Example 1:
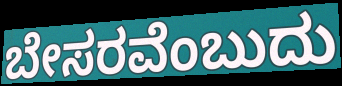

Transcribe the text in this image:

ಬೇಸರವೆಂಬುದು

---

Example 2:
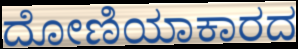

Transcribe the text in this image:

ದೋಣಿಯಾಕಾರದ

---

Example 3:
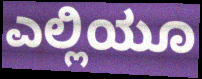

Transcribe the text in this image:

ಎಲ್ಲಿಯೂ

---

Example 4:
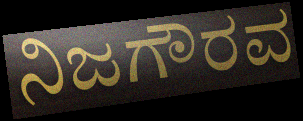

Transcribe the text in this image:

ನಿಜಗೌರವ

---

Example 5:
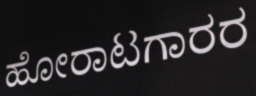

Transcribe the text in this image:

ಹೋರಾಟಗಾರರ